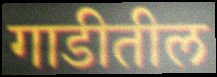
गाडीतील